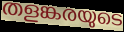
തളങ്കരയുടെ